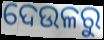
ଦେଉଳରୁ